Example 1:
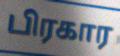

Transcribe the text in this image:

பிரகார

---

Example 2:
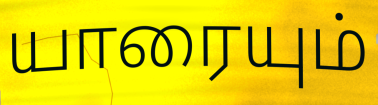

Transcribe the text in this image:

யாரையும்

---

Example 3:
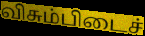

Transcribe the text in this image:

விசும்பிடைச்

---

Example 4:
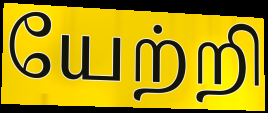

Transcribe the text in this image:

யேற்றி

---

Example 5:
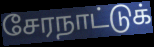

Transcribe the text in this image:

சேரநாட்டுக்